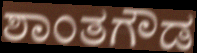
ಶಾಂತಗೌಡ